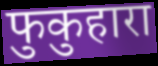
फुकुहारा